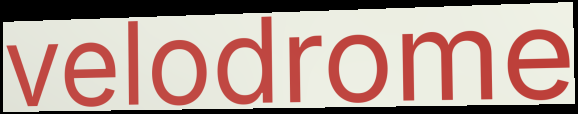
velodrome